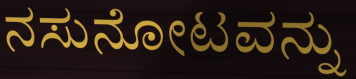
ನಸುನೋಟವನ್ನು